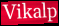
Vikalp